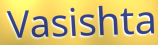
Vasishta